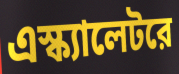
এস্ক্যালেটরে